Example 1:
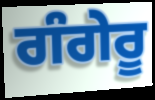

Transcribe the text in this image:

ਗੰਗੇਰੂ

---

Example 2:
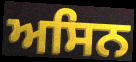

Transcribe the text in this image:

ਅਸਿਨ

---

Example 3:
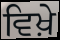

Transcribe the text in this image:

ਵਿਖ਼ੇ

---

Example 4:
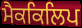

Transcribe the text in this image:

ਮੈਕਕਿਲਿਪ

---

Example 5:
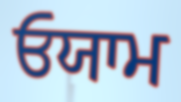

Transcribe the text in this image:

ਓਯਾਮ